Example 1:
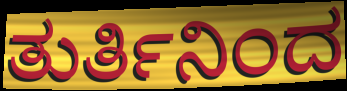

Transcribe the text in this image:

ತುರ್ತಿನಿಂದ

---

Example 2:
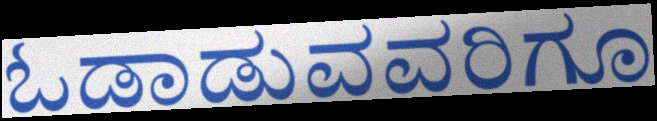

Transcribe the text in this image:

ಓಡಾಡುವವರಿಗೂ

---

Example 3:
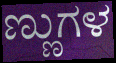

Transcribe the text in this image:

ಣ್ಣುಗಳ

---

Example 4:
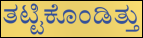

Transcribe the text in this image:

ತಟ್ಟಿಕೊಂಡಿತ್ತು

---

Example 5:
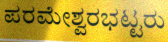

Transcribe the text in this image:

ಪರಮೇಶ್ವರಭಟ್ಟರು